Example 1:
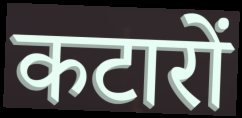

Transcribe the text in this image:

कटारों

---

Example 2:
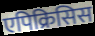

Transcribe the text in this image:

एपिक्रिसिस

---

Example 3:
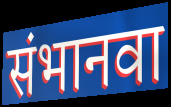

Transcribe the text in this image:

संभानवा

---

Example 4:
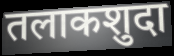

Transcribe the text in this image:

तलाकशुदा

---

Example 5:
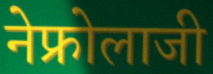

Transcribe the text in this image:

नेफ्रोलाजी